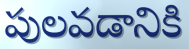
పులవడానికి